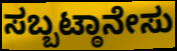
ಸಬ್ಬಟ್ಠಾನೇಸು